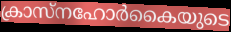
ക്രാസ്നഹോർകൈയുടെ